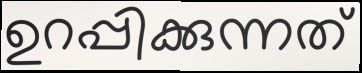
ഉറപ്പിക്കുന്നത്